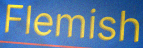
Flemish